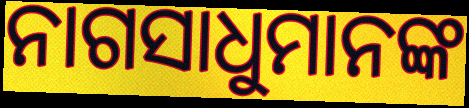
ନାଗସାଧୁମାନଙ୍କ